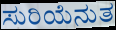
ಸುರಿಯೆನುತ